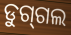
ଡୁଗ୍‌ଗଲ